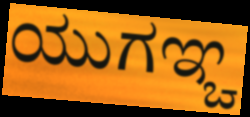
ಯುಗಞ್ಚ